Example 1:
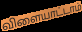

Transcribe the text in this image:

விளையாட்டாம்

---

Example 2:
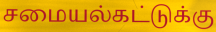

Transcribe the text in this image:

சமையல்கட்டுக்கு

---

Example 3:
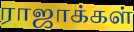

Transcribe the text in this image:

ராஜாக்கள்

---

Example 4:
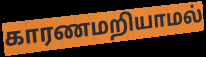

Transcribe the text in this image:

காரணமறியாமல்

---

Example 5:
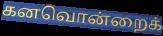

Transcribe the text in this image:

கனவொன்றைக்